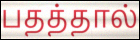
பதத்தால்